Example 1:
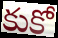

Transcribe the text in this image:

కుకో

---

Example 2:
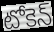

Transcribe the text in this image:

టోకెన్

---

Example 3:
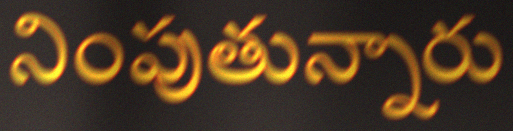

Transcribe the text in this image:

నింపుతున్నారు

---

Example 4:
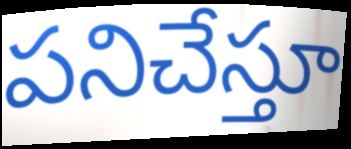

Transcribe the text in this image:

పనిచేస్తూ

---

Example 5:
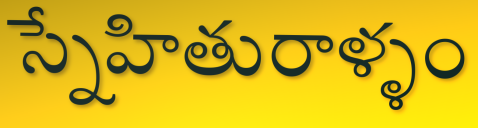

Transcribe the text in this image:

స్నేహితురాళ్ళం